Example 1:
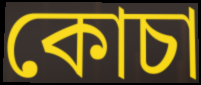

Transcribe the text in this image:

কোচা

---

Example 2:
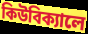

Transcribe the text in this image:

কিউবিক্যালে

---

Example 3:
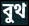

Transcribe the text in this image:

বুথ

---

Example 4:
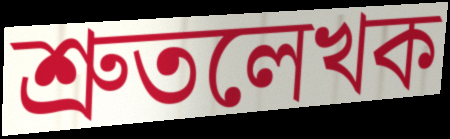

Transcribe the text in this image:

শ্রুতলেখক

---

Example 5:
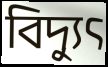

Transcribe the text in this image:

বিদ্যুৎ